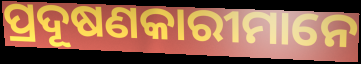
ପ୍ରଦୂଷଣକାରୀମାନେ